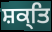
ਸ਼ਕ੍ਤਿ